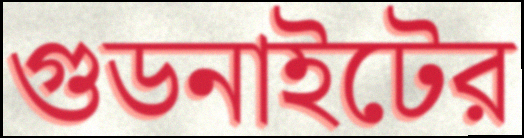
গুডনাইটের